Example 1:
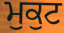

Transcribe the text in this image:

ਮੁਕੁਟ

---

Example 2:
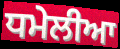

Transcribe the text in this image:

ਧਮੇਲੀਆ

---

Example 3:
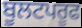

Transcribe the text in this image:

ਬੂਲਟਪਰੂਫ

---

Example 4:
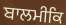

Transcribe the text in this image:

ਬਾਲਮੀਕਿ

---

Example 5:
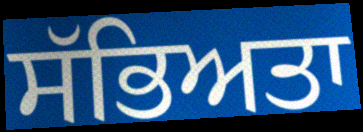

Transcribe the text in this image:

ਸੱਭਿਅਤਾ